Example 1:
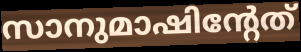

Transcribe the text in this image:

സാനുമാഷിന്റേത്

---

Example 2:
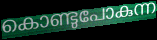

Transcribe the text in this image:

കൊണ്ടുപോകുന്ന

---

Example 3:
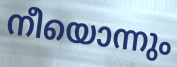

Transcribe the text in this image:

നീയൊന്നും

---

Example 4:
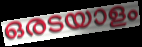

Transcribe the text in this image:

ഒരടയാളം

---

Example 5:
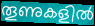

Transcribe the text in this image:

തൂണുകളിൽ